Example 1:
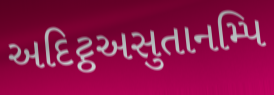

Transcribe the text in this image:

અદિટ્ઠઅસુતાનમ્પિ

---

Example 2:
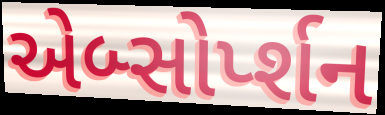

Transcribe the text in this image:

એબ્સોર્પ્શન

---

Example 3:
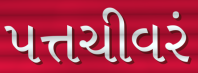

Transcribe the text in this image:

પત્તચીવરં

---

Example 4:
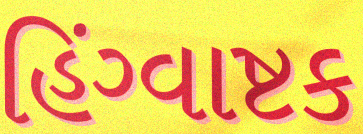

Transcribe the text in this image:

હિંગ્વાષ્ટક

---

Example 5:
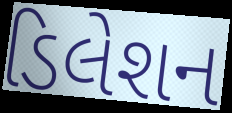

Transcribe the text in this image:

ડિલેશન